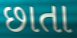
છાતા